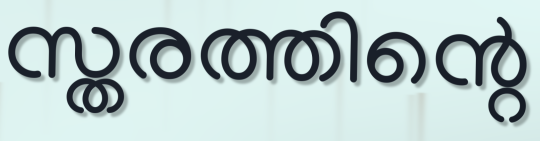
സ്തരത്തിന്റെ